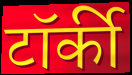
टॉर्की